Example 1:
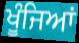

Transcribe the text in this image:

ਖੂੰਜਿਆਂ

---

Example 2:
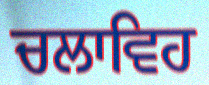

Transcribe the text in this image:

ਚਲਾਵਿਹ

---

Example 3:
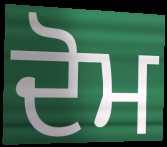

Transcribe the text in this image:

ਦੋਮ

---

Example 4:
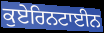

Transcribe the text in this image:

ਕੁਏਰਿਨਟਾਈਨ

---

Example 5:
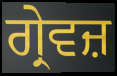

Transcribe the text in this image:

ਗ੍ਰੇਵਜ਼